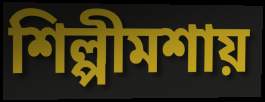
শিল্পীমশায়